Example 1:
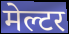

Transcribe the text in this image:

मेल्टर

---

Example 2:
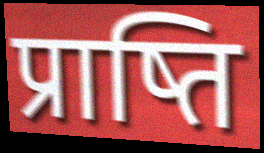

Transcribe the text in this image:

प्राष्ति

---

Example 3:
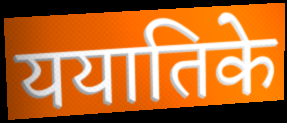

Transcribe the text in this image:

ययातिके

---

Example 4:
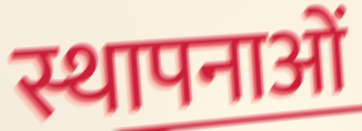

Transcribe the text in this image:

स्थापनाओं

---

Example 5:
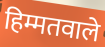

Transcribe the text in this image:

हिम्मतवाले